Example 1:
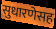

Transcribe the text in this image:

सुधारणेसह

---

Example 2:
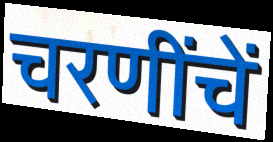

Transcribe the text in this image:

चरणींचें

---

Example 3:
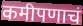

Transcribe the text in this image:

कमीपणाचं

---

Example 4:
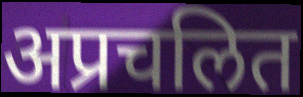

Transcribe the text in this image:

अप्रचलित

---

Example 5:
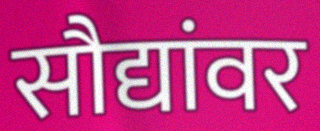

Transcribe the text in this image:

सौद्यांवर